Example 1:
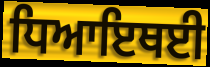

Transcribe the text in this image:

ਧਿਆਇਥਈ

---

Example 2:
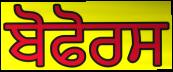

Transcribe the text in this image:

ਬੋਫੋਰਸ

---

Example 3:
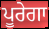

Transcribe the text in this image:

ਪੂਰੇਗਾ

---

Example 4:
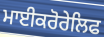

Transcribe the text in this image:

ਮਾਈਕਰੋਰੇਲਿਫ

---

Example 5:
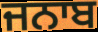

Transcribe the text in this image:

ਜਨਾਬ